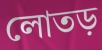
লোতড়